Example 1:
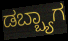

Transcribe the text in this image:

ಡಬ್ಬ್ಯಾಗ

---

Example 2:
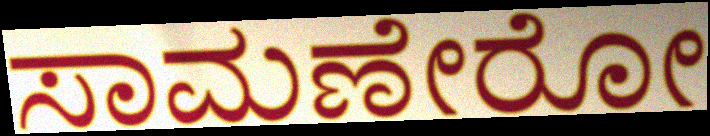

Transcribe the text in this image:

ಸಾಮಣೇರೋ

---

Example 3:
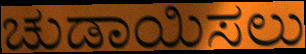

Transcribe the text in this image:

ಚುಡಾಯಿಸಲು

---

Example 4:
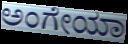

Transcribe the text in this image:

ಅಂಗೇಯಾ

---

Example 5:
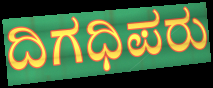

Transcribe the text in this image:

ದಿಗಧಿಪರು